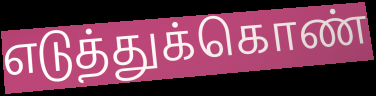
எடுத்துக்கொண்